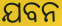
ଯବନ